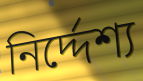
নির্দ্দেশ্য